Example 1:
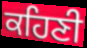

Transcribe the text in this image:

ਕਹਿਣੀ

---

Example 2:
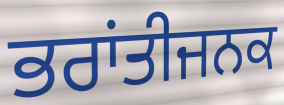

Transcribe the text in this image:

ਭਰਾਂਤੀਜਨਕ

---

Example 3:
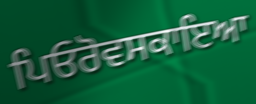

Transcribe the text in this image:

ਪਿਓਰੋਵਸਕਾਇਆ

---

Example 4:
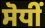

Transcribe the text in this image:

ਸੋਧੀਂ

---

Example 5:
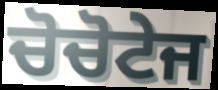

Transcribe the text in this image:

ਚੋਚੋਟੇਜ